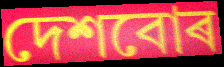
দেশবোৰ